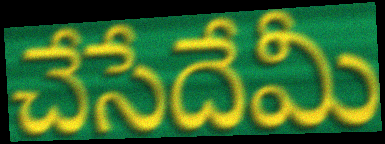
చేసేదేమీ